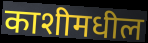
काशीमधील